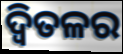
ଦ୍ୱିତଳର